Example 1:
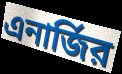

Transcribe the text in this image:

এনার্জির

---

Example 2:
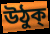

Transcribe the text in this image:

উঠুক্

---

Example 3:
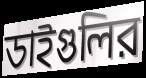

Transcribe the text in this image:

ডাইগুলির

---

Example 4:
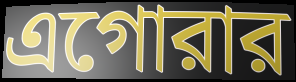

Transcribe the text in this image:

এগোরার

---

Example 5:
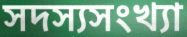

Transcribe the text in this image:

সদস্যসংখ্যা